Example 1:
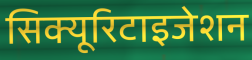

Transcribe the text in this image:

सिक्यूरिटाइजेशन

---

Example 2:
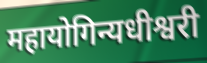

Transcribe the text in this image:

महायोगिन्यधीश्वरी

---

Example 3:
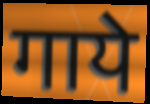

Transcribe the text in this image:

गाये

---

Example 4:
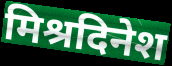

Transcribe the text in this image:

मिश्रदिनेश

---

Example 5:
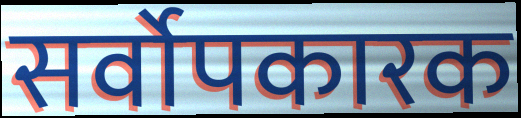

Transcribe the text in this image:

सर्वोपकारक